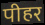
पीहर